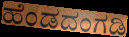
ಹೆಂಡದಂಗಡಿ